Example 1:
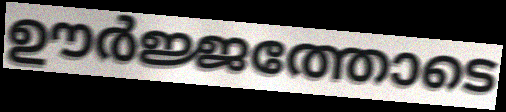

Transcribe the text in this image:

ഊർജ്ജത്തോടെ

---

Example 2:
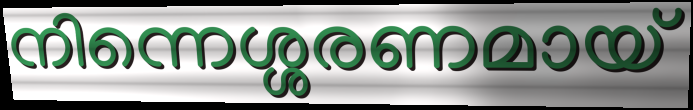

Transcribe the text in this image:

നിന്നെശ്ശരണമായ്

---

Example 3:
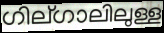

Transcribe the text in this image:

ഗില്ഗാലിലുള്ള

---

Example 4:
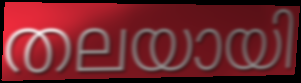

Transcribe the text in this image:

തലയായി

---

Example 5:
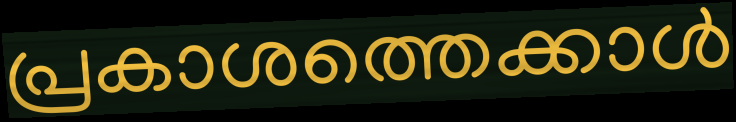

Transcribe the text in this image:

പ്രകാശത്തെക്കാൾ